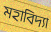
মহাবিদ্যা